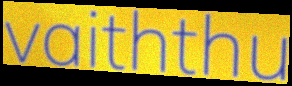
vaiththu